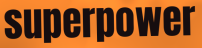
superpower